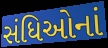
સંધિઓનાં